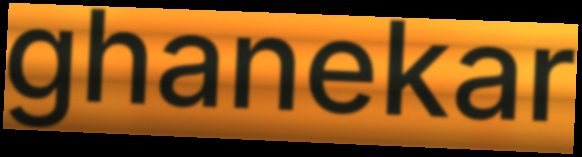
ghanekar